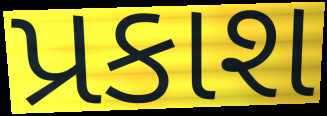
પ્રકાશ